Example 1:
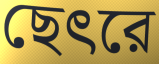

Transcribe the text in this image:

ছেৎরে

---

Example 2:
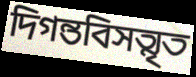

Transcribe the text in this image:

দিগন্তবিসত্মৃত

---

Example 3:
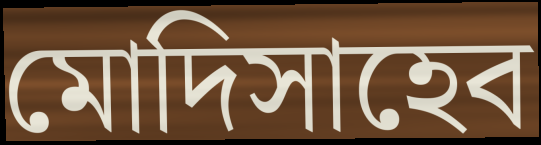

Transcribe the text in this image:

মোদিসাহেব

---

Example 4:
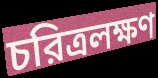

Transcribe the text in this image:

চরিত্রলক্ষণ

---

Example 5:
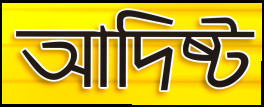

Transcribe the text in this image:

আদিষ্ট